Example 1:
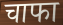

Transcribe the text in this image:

चाफा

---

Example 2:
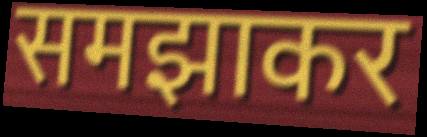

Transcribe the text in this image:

समझाकर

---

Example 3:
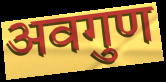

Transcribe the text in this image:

अवगुण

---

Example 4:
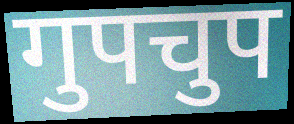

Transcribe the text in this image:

गुपचुप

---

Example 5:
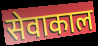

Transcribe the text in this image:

सेवाकाल